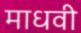
माधवी